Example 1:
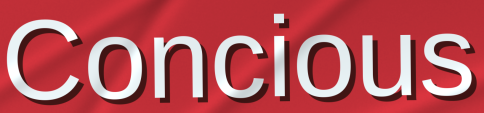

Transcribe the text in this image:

Concious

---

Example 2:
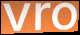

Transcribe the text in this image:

vro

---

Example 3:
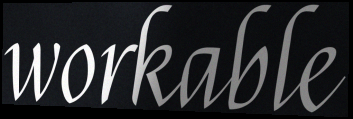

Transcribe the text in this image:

workable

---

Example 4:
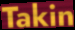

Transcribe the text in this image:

Takin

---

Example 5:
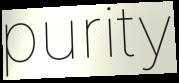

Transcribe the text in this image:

purity